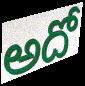
అదో